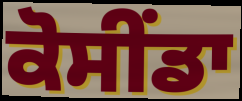
ਕੋਸੀਂਡਾ